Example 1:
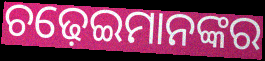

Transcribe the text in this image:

ଚଢ଼େଇମାନଙ୍କର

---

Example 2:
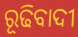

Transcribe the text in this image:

ରୂଢିବାଦୀ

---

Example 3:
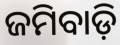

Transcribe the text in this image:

ଜମିବାଡ଼ି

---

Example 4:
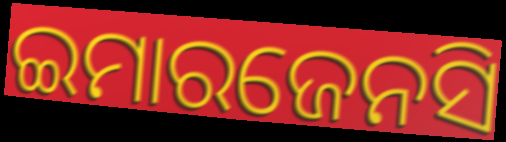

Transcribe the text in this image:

ଇମାରଜେନସି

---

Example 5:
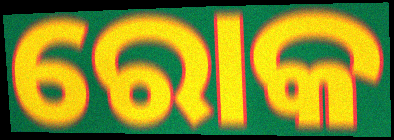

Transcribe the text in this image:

ରୋକ